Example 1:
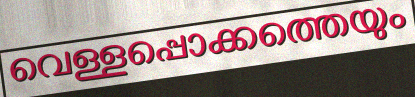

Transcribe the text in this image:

വെള്ളപ്പൊക്കത്തെയും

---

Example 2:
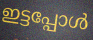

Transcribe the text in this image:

ഇട്ടപ്പോൾ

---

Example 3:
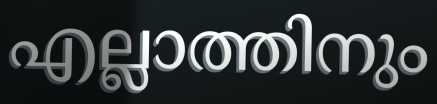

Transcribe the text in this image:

എല്ലാത്തിനും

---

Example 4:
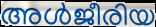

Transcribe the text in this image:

അൾജീരിയ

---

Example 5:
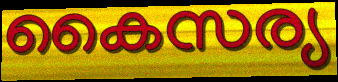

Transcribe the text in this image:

കൈസര്യ